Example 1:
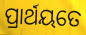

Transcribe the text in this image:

ପ୍ରାର୍ଥୟତେ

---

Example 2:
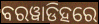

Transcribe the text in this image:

ବରୱାଡିହରେ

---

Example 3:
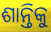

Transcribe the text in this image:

ଶାନ୍ତିକୁ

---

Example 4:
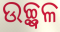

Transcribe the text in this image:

ଉଚ୍ଛ୍ୱଳ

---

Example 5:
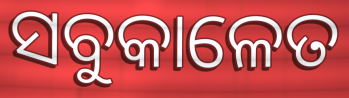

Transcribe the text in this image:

ସବୁକାଳେତ